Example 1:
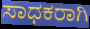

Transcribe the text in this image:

ಸಾಧಕರಾಗಿ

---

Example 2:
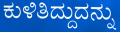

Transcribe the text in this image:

ಕುಳಿತಿದ್ದುದನ್ನು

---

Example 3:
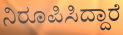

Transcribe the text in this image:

ನಿರೂಪಿಸಿದ್ದಾರೆ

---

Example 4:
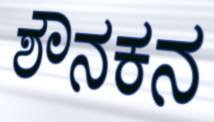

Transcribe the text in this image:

ಶೌನಕನ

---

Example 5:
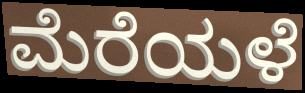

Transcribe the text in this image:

ಮೆರೆಯಳೆ